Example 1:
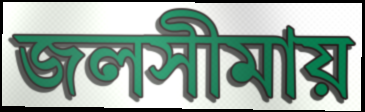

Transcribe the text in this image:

জলসীমায়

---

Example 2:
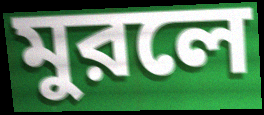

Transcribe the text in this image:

মুরলে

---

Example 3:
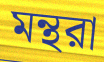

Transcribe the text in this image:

মন্থরা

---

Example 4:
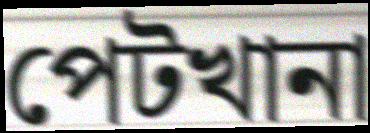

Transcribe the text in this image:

পেটখানা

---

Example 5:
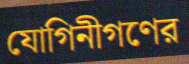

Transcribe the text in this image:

যোগিনীগণের